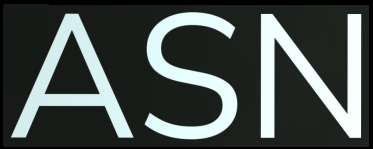
ASN